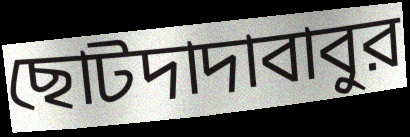
ছোটদাদাবাবুর